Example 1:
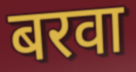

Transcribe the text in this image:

बरवा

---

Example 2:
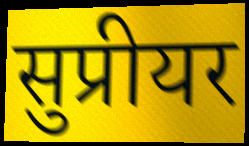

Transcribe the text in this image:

सुप्रीयर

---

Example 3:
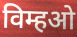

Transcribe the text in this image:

विम्हओ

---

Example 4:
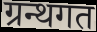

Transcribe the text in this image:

ग्रन्थगत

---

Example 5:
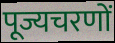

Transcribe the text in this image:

पूज्यचरणों